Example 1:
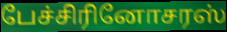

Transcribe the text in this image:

பேச்சிரினோசரஸ்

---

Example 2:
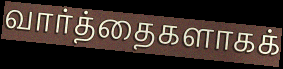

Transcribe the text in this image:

வார்த்தைகளாகக்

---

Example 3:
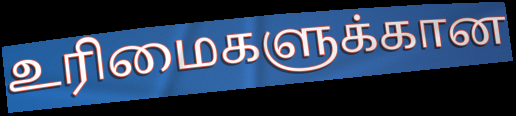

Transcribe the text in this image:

உரிமைகளுக்கான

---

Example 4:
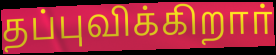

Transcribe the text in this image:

தப்புவிக்கிறார்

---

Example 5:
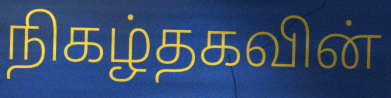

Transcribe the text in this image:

நிகழ்தகவின்